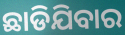
ଛାଡିଯିବାର